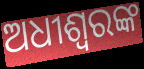
ଅଧୀଶ୍ୱରଙ୍କ